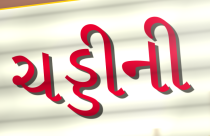
ચડ્ડીની